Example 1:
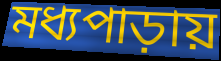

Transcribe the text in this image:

মধ্যপাড়ায়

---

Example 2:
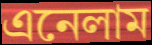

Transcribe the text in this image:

এনেলাম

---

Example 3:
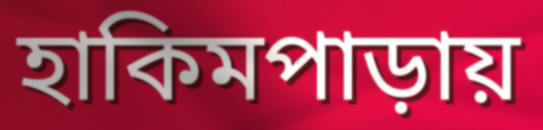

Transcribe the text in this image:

হাকিমপাড়ায়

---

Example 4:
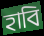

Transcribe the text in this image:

হাবি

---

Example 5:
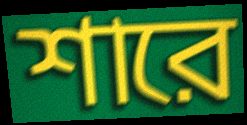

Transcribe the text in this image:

শারে